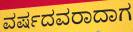
ವರ್ಷದವರಾದಾಗ